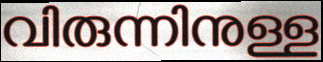
വിരുന്നിനുള്ള